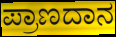
ಪ್ರಾಣದಾನ